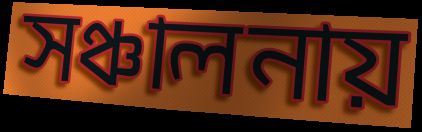
সঞ্চালনায়